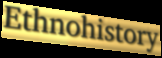
Ethnohistory